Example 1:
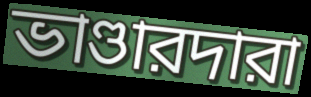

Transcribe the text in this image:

ভাণ্ডারদারা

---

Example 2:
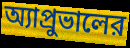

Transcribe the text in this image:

অ্যাপ্রুভালের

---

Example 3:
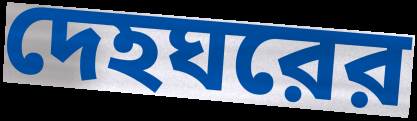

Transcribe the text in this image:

দেহঘরের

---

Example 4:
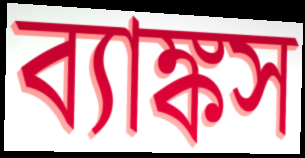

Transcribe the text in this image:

ব্যাঙ্কস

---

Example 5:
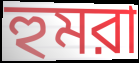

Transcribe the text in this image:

হুমরা